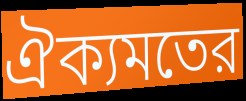
ঐক্যমতের